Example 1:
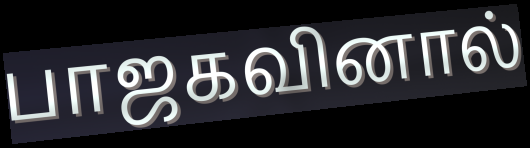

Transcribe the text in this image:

பாஜகவினால்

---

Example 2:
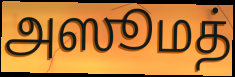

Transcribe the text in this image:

அஸூமத்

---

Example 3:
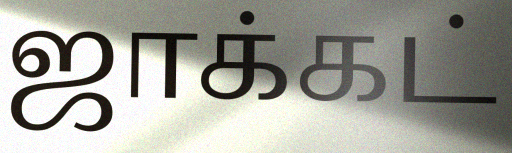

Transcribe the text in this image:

ஜாக்கட்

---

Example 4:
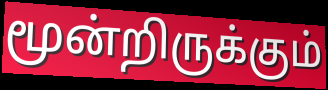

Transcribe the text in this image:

மூன்றிருக்கும்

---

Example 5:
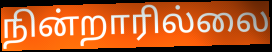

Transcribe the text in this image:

நின்றாரில்லை